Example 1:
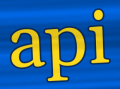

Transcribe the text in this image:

api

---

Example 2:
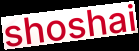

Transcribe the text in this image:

shoshai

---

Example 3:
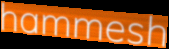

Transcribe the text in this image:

hammesh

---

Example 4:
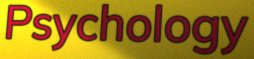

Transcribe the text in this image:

Psychology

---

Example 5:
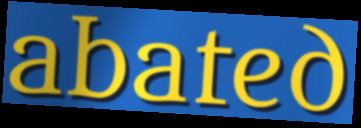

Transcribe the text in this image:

abated